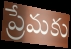
ప్రేమకు